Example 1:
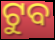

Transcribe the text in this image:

ଟୁବ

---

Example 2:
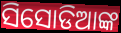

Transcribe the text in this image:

ସିସୋଡିଆଙ୍କ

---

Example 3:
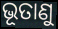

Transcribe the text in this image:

ଭୂତାଣୁ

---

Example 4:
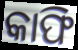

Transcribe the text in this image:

କାଫି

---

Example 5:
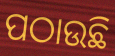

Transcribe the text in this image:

ପଠାଉଛି